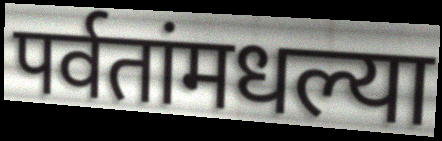
पर्वतांमधल्या